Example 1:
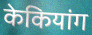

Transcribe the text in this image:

केकियांग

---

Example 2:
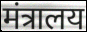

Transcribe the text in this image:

मंत्रालय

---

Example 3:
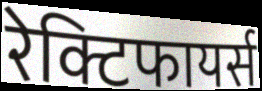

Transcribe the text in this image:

रेक्टिफायर्स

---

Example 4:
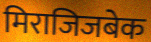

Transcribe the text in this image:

मिराजिजबेक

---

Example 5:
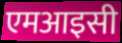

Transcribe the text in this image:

एमआइसी